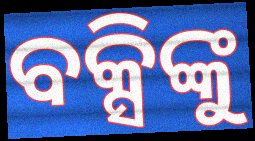
ବକ୍ସିଙ୍କୁ